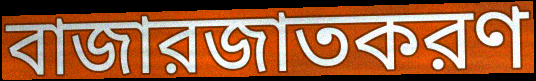
বাজারজাতকরণ